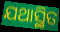
ଯଥାସ୍ଥିତ